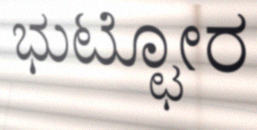
ಭುಟ್ಟೋರ